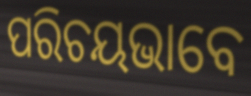
ପରିଚୟଭାବେ